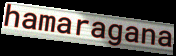
hamaragana